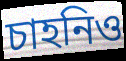
চাহনিও